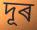
দূৰ